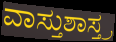
ವಾಸ್ತುಶಾಸ್ತ್ರ